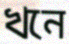
খনে